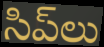
సిప్‌లు